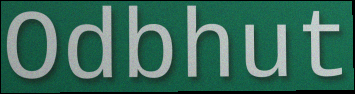
Odbhut